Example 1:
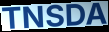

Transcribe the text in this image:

TNSDA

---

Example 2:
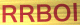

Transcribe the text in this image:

RRBOl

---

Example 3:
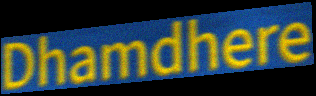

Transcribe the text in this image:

Dhamdhere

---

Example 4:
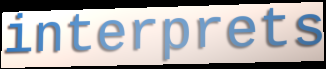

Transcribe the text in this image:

interprets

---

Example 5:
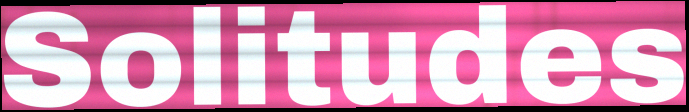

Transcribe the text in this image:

Solitudes